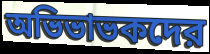
অভিভাভকদের